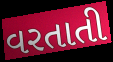
વરતાતી